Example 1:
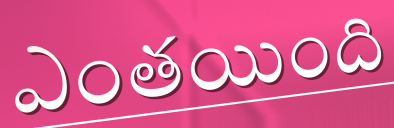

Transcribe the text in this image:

ఎంతయింది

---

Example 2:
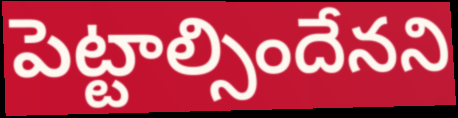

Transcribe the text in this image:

పెట్టాల్సిందేనని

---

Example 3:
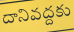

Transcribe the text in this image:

దానివద్దకు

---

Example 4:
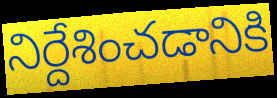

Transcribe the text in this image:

నిర్దేశించడానికి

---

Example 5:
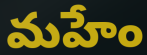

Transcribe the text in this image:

మహేం